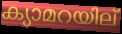
ക്യാമറയില്